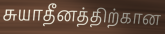
சுயாதீனத்திற்கான